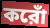
করোঁ